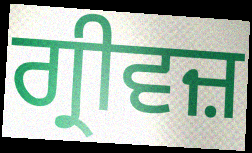
ਗ੍ਰੀਵਜ਼